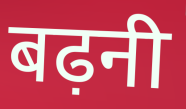
बढ़नी